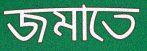
জমাতে